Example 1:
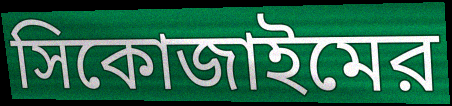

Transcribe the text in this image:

সিকোজাইমের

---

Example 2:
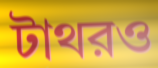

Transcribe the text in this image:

টাথরও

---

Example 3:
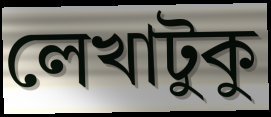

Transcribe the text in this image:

লেখাটুকু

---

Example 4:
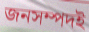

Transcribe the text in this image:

জনসম্পদই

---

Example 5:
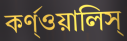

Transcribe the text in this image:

কর্ণ্ওয়ালিস্